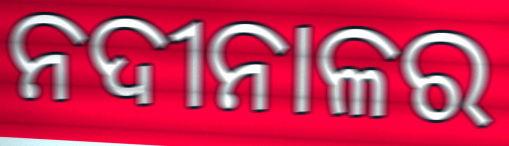
ନଦୀନାଳର